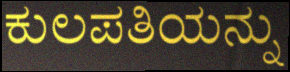
ಕುಲಪತಿಯನ್ನು